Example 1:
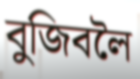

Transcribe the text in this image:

বুজিবলৈ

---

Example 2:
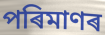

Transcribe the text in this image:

পৰিমাণৰ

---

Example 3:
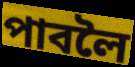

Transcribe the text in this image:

পাবলৈ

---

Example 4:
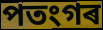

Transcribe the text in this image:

পতংগৰ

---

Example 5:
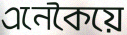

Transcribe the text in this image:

এনেকৈয়ে